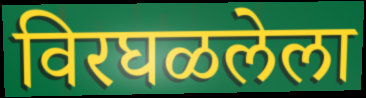
विरघळलेला